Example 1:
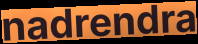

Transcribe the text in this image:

nadrendra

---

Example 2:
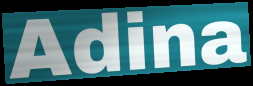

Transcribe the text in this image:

Adina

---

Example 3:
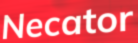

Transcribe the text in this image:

Necator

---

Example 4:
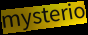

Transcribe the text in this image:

mysterio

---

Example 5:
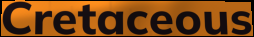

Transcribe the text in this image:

Cretaceous